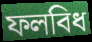
ফলবিধ